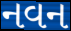
નવન